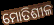
ମୋତିଶୀଳ